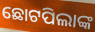
ଛୋଟପିଲାଙ୍କ